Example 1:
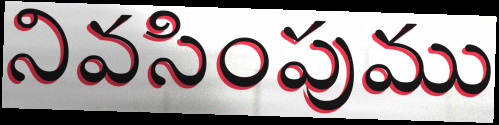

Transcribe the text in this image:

నివసింపుము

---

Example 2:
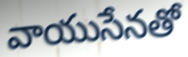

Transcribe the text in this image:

వాయుసేనతో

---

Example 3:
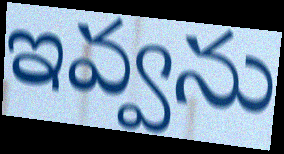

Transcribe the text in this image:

ఇవ్వను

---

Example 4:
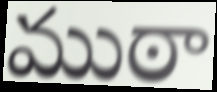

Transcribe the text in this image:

ముఠా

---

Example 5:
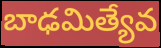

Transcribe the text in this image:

బాఢమిత్యేవ